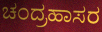
ಚಂದ್ರಹಾಸರ